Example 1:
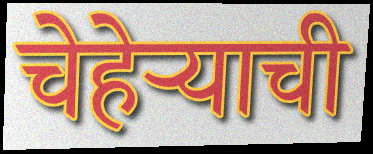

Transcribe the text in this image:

चेहेऱ्याची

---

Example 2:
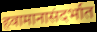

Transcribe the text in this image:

हवामानासंदर्भात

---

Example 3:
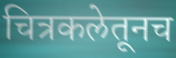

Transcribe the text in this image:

चित्रकलेतूनच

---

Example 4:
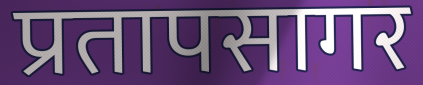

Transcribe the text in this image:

प्रतापसागर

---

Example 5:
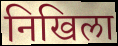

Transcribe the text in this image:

निखिला